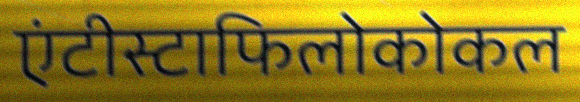
एंटीस्टाफिलोकोकल